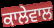
ਕਾਲੇਵਾਲ